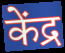
केंद्र